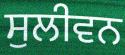
ਸੁਲੀਵਨ